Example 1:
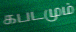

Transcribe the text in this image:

கபடமும்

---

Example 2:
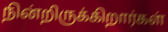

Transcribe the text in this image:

நின்றிருக்கிறார்கள்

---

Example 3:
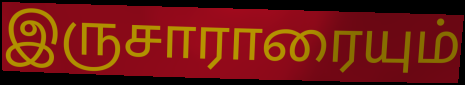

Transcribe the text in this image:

இருசாராரையும்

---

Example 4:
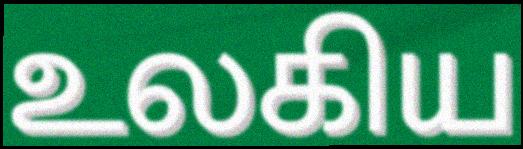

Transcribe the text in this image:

உலகிய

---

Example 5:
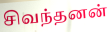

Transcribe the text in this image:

சிவந்தனன்